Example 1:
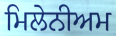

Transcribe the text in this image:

ਮਿਲੇਨੀਅਮ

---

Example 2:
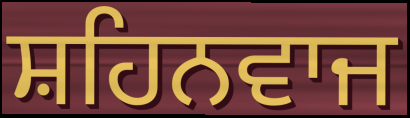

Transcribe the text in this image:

ਸ਼ਹਿਨਵਾਜ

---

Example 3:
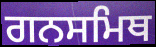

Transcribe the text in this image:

ਗਨਸਮਿਥ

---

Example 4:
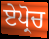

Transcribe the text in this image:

ਏਪ੍ਰੋਚ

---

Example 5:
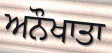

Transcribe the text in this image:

ਅਨੌਖਾਤਾ